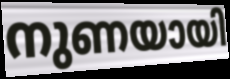
നുണയായി